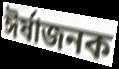
ঈর্ষাজনক